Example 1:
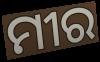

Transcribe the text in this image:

ମୀର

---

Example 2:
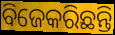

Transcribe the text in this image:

ବିଜେକରିଛନ୍ତି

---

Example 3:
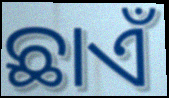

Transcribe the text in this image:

ଛାଏଁ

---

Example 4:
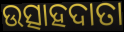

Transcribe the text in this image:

ଉତ୍ସାହଦାତା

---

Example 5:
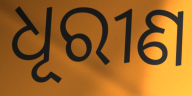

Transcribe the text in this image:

ଧୂରୀଣ